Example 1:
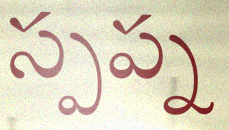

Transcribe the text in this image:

స్పప్న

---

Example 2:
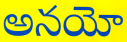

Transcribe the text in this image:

అనయో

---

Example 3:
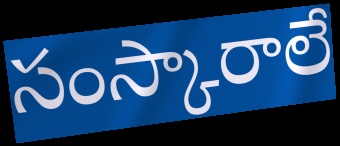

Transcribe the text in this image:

సంస్కారాలే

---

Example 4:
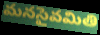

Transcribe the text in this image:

మనసైవమితి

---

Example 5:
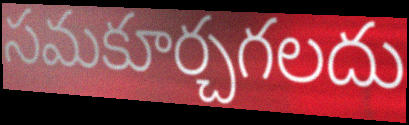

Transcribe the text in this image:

సమకూర్చగలదు